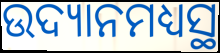
ଉଦ୍ୟାନମଧ୍ୟସ୍ଥ